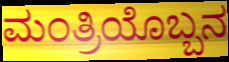
ಮಂತ್ರಿಯೊಬ್ಬನ